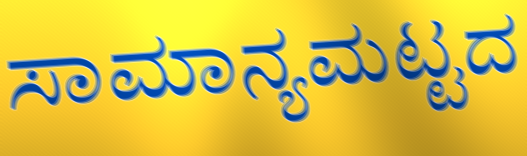
ಸಾಮಾನ್ಯಮಟ್ಟದ